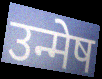
उन्मेष